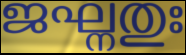
ജഘ്നതുഃ